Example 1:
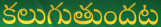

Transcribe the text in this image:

కలుగుతుందట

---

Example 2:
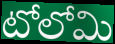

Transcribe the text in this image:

టోలోమి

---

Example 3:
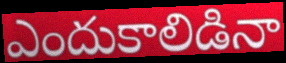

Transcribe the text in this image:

ఎందుకాలిడినా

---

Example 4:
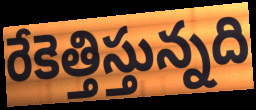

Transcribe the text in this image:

రేకెత్తిస్తున్నది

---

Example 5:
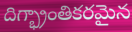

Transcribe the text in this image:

దిగ్భ్రాంతికరమైన